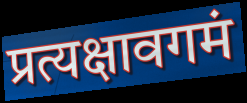
प्रत्यक्षावगमं